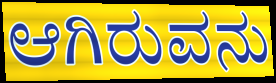
ಆಗಿರುವನು